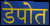
डेपोत